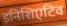
इनिशिएटिव